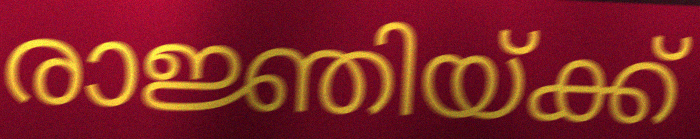
രാജ്ഞിയ്ക്ക്